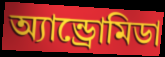
অ্যান্ড্রোমিডা